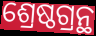
ଶ୍ରେଷ୍ଠଗ୍ରନ୍ଥ